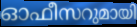
ഓഫീസറുമായി